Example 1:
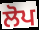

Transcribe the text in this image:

ਲੋਪ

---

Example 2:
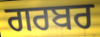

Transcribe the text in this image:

ਗਰਬਰ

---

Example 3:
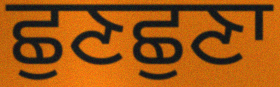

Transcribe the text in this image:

ਛੁਣਛੁਣਾ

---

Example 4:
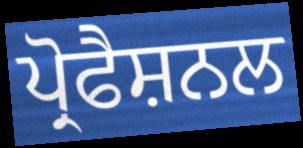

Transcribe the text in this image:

ਪ੍ਰੋਫੈਸ਼ਨਲ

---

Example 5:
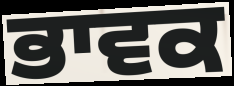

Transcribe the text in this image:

ਭਾਵਕ